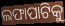
ଲଫାପାଟିକୁ